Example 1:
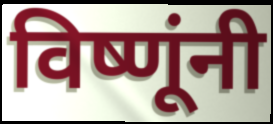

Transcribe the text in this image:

विष्णूंनी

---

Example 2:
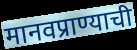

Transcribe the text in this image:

मानवप्राण्याची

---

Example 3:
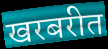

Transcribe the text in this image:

खरबरीत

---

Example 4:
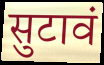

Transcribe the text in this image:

सुटावं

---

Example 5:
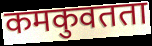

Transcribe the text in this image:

कमकुवतता